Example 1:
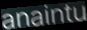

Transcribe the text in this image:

anaintu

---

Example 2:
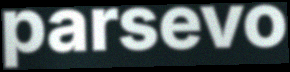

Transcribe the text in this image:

parsevo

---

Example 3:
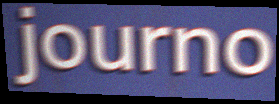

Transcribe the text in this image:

journo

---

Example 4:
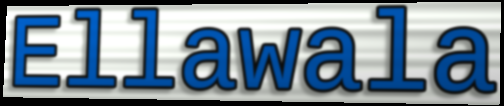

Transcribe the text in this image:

Ellawala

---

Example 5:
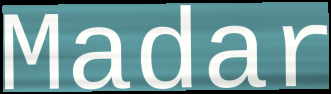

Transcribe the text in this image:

Madar